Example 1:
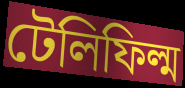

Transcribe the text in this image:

টেলিফিল্ম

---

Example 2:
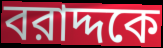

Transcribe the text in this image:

বরাদ্দকে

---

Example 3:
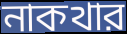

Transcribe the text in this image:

নাকথার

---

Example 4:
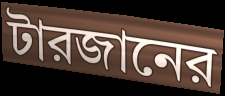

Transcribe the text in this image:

টারজানের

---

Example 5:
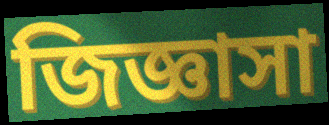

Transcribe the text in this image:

জিজ্ঞাসা